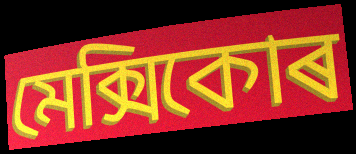
মেক্সিকোৰ